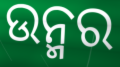
ଉନ୍ମର